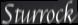
Sturrock